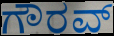
ಗೌರವ್